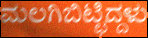
ಮಲಗಿಬಿಟ್ಟಿದ್ದಳು